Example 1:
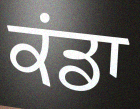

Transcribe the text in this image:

ਕਂਡਾ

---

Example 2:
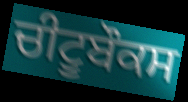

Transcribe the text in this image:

ਚੀਟੂਬੌਕਸ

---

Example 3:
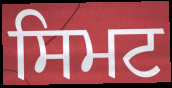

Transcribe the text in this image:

ਸਿਮਟ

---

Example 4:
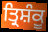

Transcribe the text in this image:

ਤ੍ਰਿਸ਼ੰਕੂ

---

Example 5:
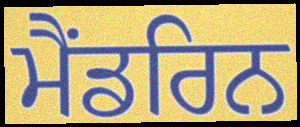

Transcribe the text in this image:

ਮੈਂਡਰਿਨ